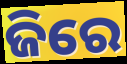
ଜିରେ